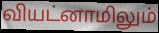
வியட்னாமிலும்